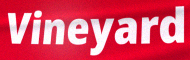
Vineyard